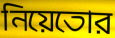
নিয়েতোর